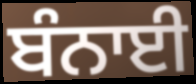
ਬੰਨਾਈ